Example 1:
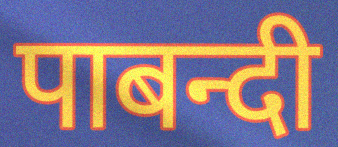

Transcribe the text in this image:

पाबन्दी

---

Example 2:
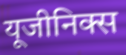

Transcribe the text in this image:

यूजीनिक्स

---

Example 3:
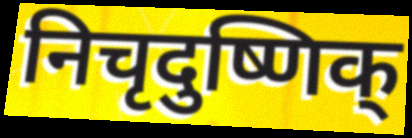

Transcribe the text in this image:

निचृदुष्णिक्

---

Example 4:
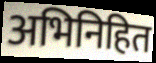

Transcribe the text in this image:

अभिनिहित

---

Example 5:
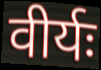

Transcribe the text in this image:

वीर्यः